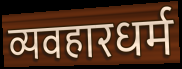
व्यवहारधर्म